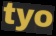
tyo